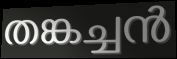
തങ്കച്ചൻ